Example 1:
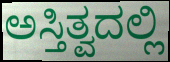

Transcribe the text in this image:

ಅಸ್ತಿತ್ವದಲ್ಲಿ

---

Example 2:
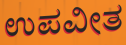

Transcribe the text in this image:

ಉಪವೀತ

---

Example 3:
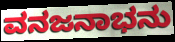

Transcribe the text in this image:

ವನಜನಾಭನು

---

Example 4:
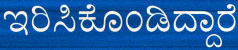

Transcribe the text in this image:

ಇರಿಸಿಕೊಂಡಿದ್ದಾರೆ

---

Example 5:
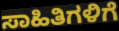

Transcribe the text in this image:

ಸಾಹಿತಿಗಳಿಗೆ